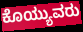
ಕೊಯ್ಯುವರು